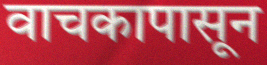
वाचकापासून